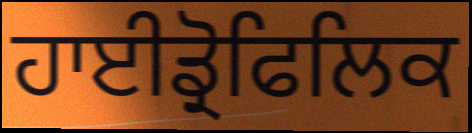
ਹਾਈਡ੍ਰੋਫਿਲਿਕ